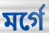
মর্গে